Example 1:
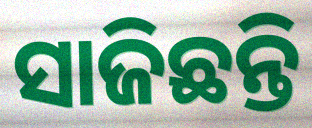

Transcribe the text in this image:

ସାଜିଛନ୍ତି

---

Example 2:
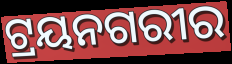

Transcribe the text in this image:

ଟ୍ରୟନଗରୀର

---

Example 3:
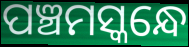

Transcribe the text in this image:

ପଞ୍ଚମସ୍କନ୍ଧେ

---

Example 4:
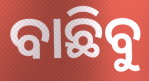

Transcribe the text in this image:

ବାଛିବୁ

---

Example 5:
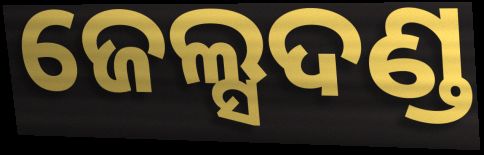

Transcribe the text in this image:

ଜେଲ୍ସଦଣ୍ଡ